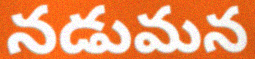
నడుమన